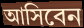
আসিবেন